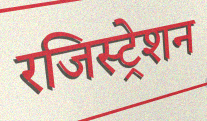
रजिस्‍ट्रेशन